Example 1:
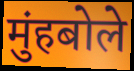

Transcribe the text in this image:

मुंहबोले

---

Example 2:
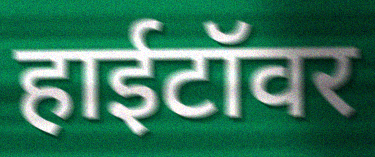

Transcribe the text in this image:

हाईटॉवर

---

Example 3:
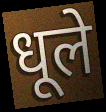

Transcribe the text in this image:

धूले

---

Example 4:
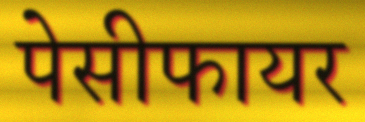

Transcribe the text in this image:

पेसीफायर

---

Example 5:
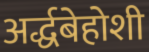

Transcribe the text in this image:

अर्द्धबेहोशी